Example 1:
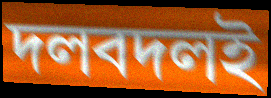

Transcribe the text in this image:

দলবদলই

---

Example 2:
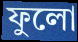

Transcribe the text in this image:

ফুলো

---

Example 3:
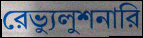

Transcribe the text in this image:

রেভ্যুলুশনারি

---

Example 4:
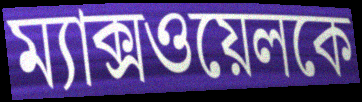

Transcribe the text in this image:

ম্যাক্সওয়েলকে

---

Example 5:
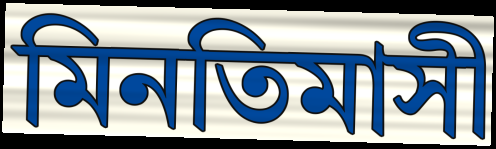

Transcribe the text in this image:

মিনতিমাসী